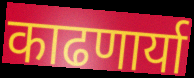
काढणार्या